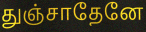
துஞ்சாதேனே